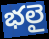
భలై